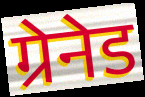
ग्रेनेड